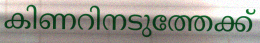
കിണറിനടുത്തേക്ക്